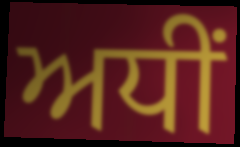
ਅਧੀਂ